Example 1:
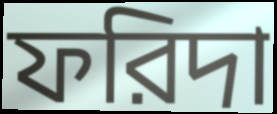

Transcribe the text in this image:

ফরিদা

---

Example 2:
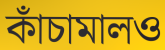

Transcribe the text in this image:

কাঁচামালও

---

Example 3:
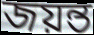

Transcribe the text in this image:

জয়ন্ত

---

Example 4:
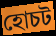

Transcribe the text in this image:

হোচট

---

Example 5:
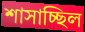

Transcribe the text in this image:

শাসাচ্ছিল